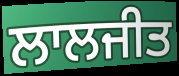
ਲਾਲਜੀਤ